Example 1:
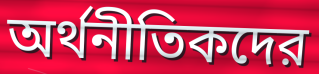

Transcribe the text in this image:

অর্থনীতিকদের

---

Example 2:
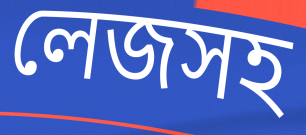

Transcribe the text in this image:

লেজসহ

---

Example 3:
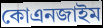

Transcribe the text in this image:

কোএনজাইম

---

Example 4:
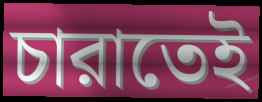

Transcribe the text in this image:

চারাতেই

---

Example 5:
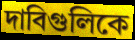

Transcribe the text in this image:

দাবিগুলিকে